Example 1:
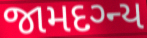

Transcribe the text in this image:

જામદગ્ન્ય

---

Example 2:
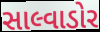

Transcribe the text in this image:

સાલ્વાડોર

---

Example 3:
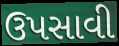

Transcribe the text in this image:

ઉપસાવી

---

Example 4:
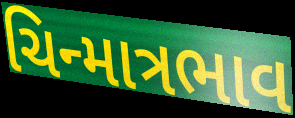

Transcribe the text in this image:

ચિન્માત્રભાવ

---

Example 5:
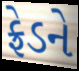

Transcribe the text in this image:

ફ્રેડને